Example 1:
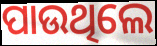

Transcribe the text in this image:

ପାଉଥିଲେ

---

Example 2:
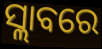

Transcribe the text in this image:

ସ୍ଲାବରେ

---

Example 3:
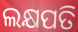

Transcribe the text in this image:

ଲକ୍ଷପତି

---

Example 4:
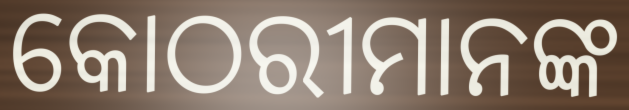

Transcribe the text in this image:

କୋଠରୀମାନଙ୍କ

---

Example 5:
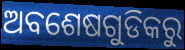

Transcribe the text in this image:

ଅବଶେଷଗୁଡିକରୁ